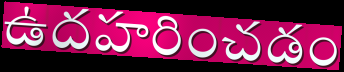
ఉదహరించడం